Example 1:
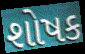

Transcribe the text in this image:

શોષક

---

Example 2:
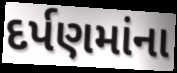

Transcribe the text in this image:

દર્પણમાંના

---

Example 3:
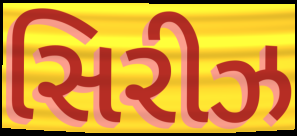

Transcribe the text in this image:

સિરીઝ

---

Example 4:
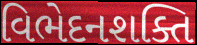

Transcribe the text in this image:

વિભેદનશક્તિ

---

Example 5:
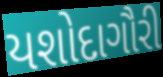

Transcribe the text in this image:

યશોદાગૌરી